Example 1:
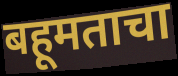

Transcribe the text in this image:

बहूमताचा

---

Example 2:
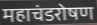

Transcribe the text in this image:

महाचंडरोषण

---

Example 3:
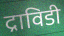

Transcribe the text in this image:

द्राविडी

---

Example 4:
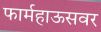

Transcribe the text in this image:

फार्महाऊसवर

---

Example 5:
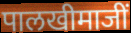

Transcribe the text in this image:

पालखीमाजीं